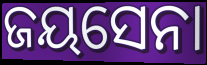
ଜୟସେନା